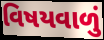
વિષયવાળું